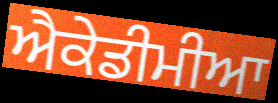
ਐਕੇਡੀਮੀਆ